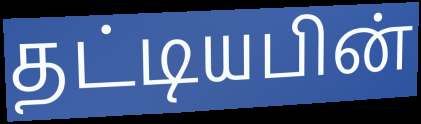
தட்டியபின்